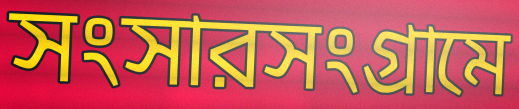
সংসারসংগ্রামে